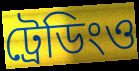
ট্রেডিংও